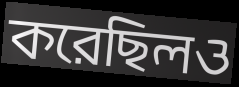
করেছিলও